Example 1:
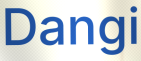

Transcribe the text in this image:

Dangi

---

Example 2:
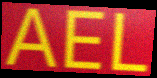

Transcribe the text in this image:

AEL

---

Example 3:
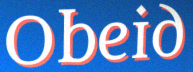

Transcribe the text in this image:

Obeid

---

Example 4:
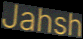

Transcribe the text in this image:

Jahsh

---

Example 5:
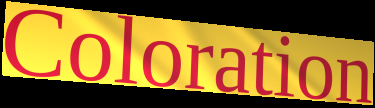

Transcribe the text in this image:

Coloration